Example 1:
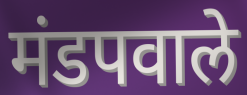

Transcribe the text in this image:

मंडपवाले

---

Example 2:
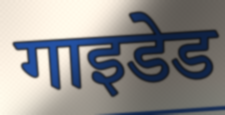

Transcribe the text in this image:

गाइडेड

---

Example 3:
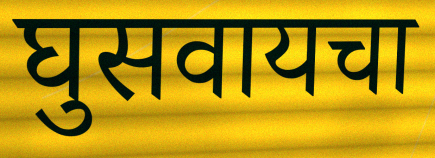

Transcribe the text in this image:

घुसवायचा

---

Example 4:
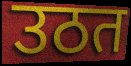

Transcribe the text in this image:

उठत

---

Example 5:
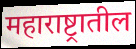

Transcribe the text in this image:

महाराष्ट्रातील